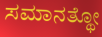
ಸಮಾನತ್ಥೋ